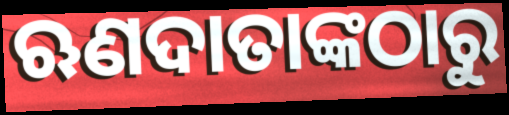
ଋଣଦାତାଙ୍କଠାରୁ